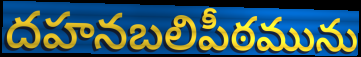
దహనబలిపీఠమును